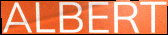
ALBERT